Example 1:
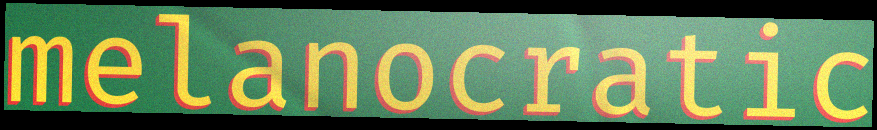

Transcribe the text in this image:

melanocratic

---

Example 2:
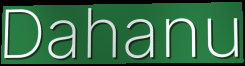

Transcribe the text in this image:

Dahanu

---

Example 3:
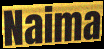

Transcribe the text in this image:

Naima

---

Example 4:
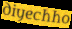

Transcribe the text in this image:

diyechho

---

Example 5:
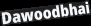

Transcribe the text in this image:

Dawoodbhai